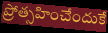
ప్రోత్సహించేందుకే